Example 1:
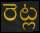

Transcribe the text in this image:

రెట్ల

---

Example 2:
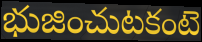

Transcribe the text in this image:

భుజించుటకంటె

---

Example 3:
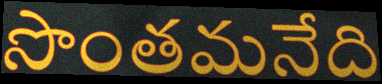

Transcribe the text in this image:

సొంతమనేది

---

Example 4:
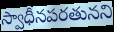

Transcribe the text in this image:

స్వాధీనపరతునని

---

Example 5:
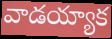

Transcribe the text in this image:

వాడయ్యాక